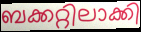
ബക്കറ്റിലാക്കി